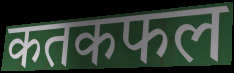
कतकफल